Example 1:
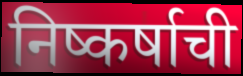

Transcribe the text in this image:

निष्कर्षाची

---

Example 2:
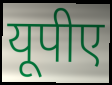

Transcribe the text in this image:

यूपीए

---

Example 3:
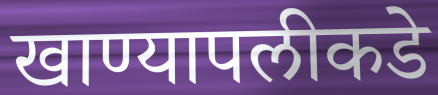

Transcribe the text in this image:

खाण्यापलीकडे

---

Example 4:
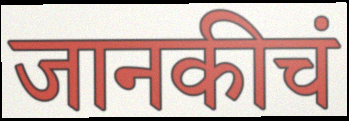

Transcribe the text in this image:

जानकीचं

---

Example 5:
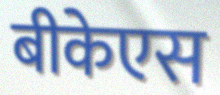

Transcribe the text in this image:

बीकेएस